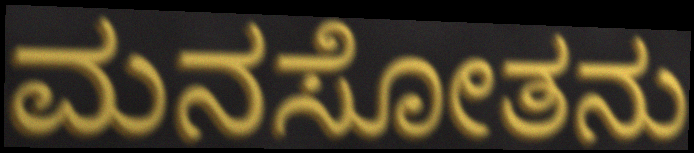
ಮನಸೋತನು